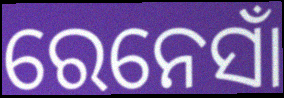
ରେନେସାଁ